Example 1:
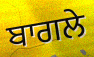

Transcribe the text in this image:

ਬਾਗਲੇ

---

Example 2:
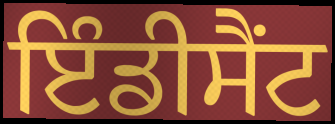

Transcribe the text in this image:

ਇੰਡੀਸੈਂਟ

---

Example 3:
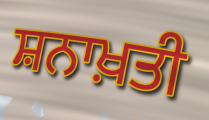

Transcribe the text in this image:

ਸ਼ਨਾਖ਼ਤੀ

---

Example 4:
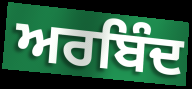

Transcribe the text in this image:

ਅਰਬਿੰਦ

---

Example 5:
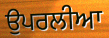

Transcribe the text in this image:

ਉਪਰਲੀਆ